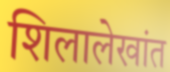
शिलालेखांत